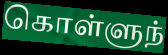
கொள்ளுந்